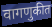
वागणुकीत